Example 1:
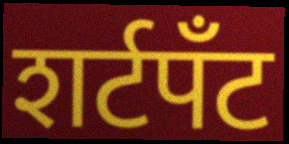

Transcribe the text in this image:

शर्टपॅंट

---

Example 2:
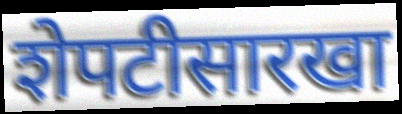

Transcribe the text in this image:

शेपटीसारखा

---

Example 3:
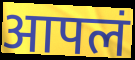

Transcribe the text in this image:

आपलं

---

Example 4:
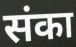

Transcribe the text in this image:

संका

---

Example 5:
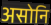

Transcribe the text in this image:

असोनि